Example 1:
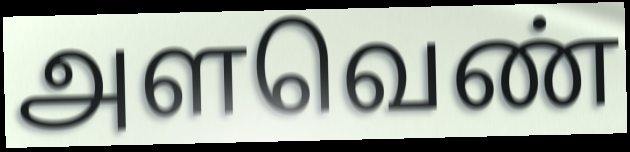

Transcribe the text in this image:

அளவெண்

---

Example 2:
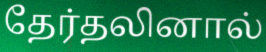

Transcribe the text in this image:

தேர்தலினால்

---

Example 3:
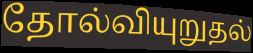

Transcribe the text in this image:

தோல்வியுறுதல்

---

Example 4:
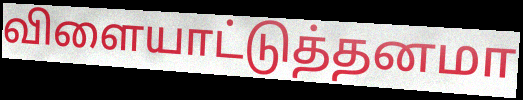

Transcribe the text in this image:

விளையாட்டுத்தனமா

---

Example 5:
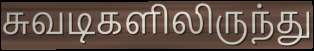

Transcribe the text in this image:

சுவடிகளிலிருந்து